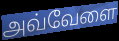
அவ்வேளை